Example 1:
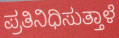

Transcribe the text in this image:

ಪ್ರತಿನಿಧಿಸುತ್ತಾಳೆ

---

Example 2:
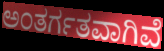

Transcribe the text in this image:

ಅಂತರ್ಗತವಾಗಿವೆ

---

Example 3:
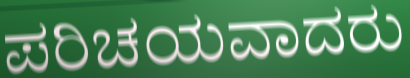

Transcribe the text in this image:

ಪರಿಚಯವಾದರು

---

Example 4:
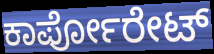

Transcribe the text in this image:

ಕಾರ್ಪೋರೇಟ್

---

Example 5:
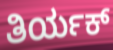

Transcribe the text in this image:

ತಿರ್ಯಕ್